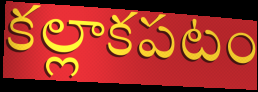
కల్లాకపటం